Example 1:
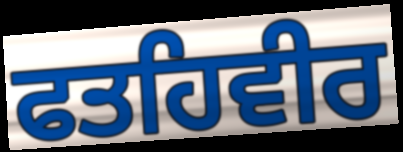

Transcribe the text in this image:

ਫਤਹਿਵੀਰ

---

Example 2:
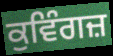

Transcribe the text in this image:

ਕੁਵਿੰਗਜ਼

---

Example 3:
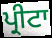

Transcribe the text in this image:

ਪ੍ਰੀਟਾ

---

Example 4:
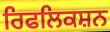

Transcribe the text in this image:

ਰਿਫਲਿਕਸ਼ਨ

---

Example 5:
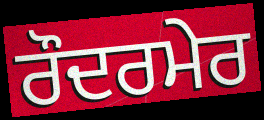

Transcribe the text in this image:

ਰੌਦਰਮੇਰ